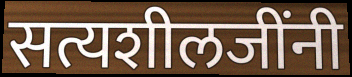
सत्यशीलजींनी